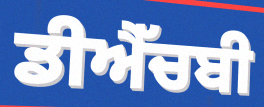
ਡੀਐੱਚਬੀ